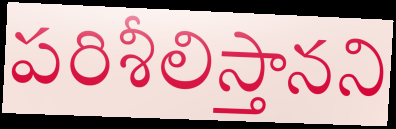
పరిశీలిస్తానని